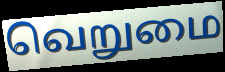
வெறுமை